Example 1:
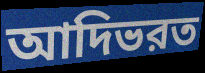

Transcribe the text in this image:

আদিভরত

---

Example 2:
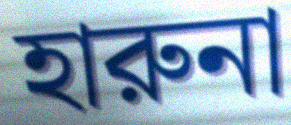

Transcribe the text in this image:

হারুনা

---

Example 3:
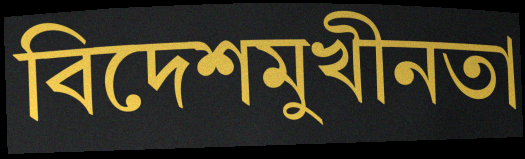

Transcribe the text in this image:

বিদেশমুখীনতা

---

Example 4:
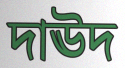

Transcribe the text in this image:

দাঊদ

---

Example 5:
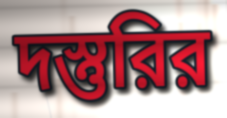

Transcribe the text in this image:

দস্তুরির